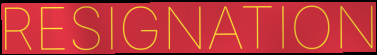
RESIGNATION